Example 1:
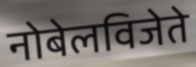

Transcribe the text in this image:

नोबेलविजेते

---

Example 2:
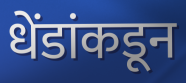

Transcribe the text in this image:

धेंडांकडून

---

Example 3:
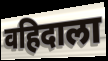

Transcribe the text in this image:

वहिदाला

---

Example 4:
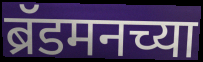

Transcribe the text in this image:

ब्रॅडमनच्या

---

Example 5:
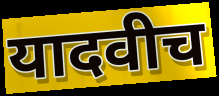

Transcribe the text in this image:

यादवीच